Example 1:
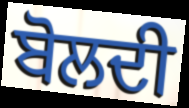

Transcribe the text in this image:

ਬੋਲਦੀ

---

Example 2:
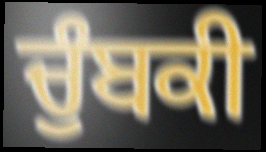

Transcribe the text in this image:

ਚੁੰਬਕੀ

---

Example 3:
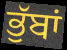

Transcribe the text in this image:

ਭੁੱਬਾਂ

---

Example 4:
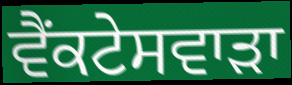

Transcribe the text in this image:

ਵੈਂਕਟੇਸਵਾੜਾ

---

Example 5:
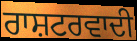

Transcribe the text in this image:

ਰਾਸ਼ਟਰਵਾਦੀ